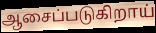
ஆசைப்படுகிறாய்